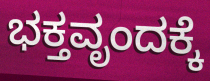
ಭಕ್ತವೃಂದಕ್ಕೆ